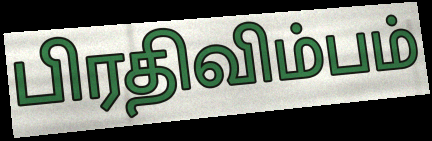
பிரதிவிம்பம்